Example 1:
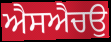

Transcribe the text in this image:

ਐਸਐਚਉ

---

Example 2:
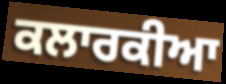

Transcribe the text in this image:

ਕਲਾਰਕੀਆ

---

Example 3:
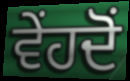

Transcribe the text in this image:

ਵੇਂਹਦੋਂ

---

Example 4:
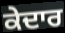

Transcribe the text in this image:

ਕੇਦਾਰ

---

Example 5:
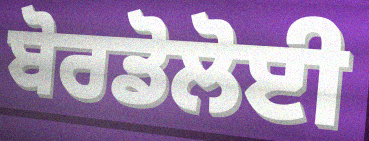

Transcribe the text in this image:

ਬੋਰਡੋਲੋਈ